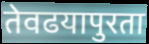
तेवढयापुरता